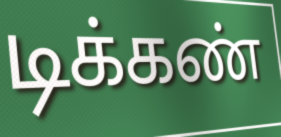
டிக்கண்